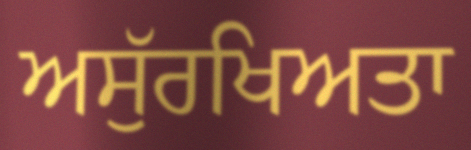
ਅਸੁੱਰਖਿਅਤਾ